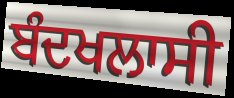
ਬੰਦਖਲਾਸੀ